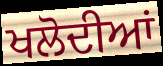
ਖਲੋਦੀਆਂ